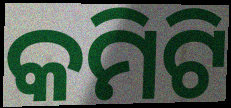
କମିଟି